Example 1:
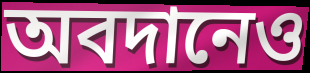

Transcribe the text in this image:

অবদানেও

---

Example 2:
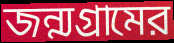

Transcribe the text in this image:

জন্মগ্রামের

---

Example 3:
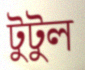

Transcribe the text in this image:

টুটুল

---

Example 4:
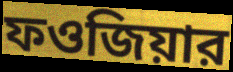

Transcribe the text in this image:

ফওজিয়ার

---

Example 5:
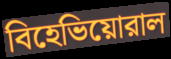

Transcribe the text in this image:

বিহেভিয়োরাল